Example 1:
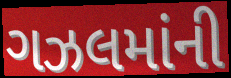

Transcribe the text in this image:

ગઝલમાંની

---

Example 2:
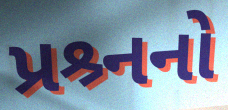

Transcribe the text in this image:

પ્રશ્ર્નનો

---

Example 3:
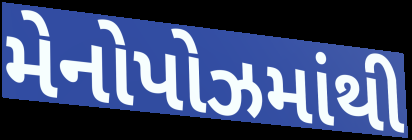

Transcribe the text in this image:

મેનોપોઝમાંથી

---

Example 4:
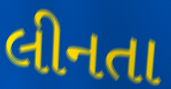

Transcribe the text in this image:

લીનતા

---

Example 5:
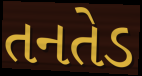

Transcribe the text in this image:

તનતેડ